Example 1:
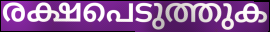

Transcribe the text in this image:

രക്ഷപെടുത്തുക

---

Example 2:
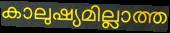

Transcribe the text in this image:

കാലുഷ്യമില്ലാത്ത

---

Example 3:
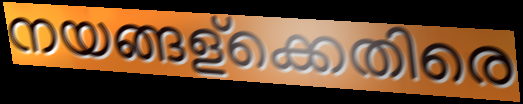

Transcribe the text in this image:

നയങ്ങള്ക്കെതിരെ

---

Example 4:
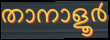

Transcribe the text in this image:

താനാളൂർ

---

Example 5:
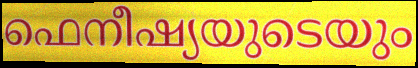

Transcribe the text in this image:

ഫെനീഷ്യയുടെയും